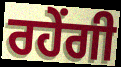
ਰਹੇਂਗੀ